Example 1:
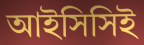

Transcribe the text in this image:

আইসিসিই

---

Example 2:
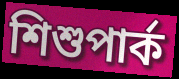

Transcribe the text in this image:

শিশুপার্ক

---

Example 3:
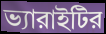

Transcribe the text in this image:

ভ্যারাইটির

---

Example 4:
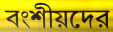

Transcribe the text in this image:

বংশীয়দের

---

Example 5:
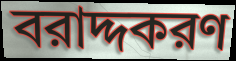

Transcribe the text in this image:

বরাদ্দকরণ